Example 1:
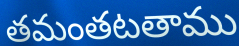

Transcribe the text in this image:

తమంతటతాము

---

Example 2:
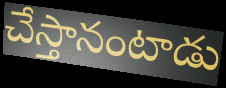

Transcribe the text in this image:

చేస్తానంటాడు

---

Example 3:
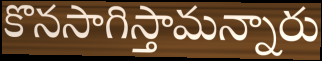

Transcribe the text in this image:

కొనసాగిస్తామన్నారు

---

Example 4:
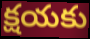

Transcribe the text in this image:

క్షయకు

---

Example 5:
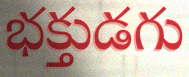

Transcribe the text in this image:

భక్తుడగు